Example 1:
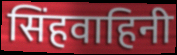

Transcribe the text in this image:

सिंहवाहिनी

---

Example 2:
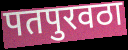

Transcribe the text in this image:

पतपुरवठा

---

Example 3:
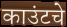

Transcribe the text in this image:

काउंटचे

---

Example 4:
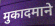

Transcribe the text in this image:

मुकादमाने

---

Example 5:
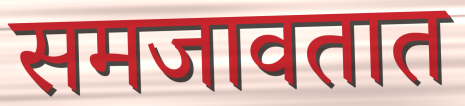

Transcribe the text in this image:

समजावतात